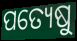
ପତ୍ୟେଷୁ